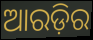
ଆରଡ଼ିର